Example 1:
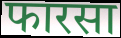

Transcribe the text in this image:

फारसा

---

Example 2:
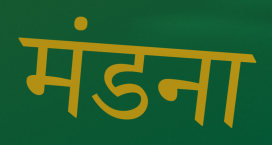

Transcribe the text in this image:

मंडना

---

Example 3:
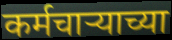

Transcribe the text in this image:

कर्मचाऱ्याच्या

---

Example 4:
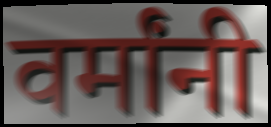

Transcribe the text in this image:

वर्मांनी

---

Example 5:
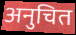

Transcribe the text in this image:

अनुचित